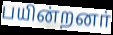
பயின்றனர்